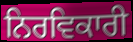
ਨਿਰਵਿਕਾਰੀ